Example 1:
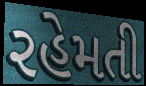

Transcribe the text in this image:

રહેમતી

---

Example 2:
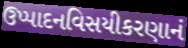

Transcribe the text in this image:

ઉપ્પાદનવિસયીકરણાનં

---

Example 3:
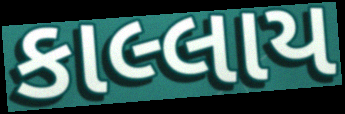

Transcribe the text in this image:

કાલ્લાય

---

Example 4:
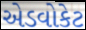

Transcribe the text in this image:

એડવોકેટ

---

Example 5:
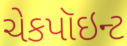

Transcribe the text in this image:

ચેકપૉઇન્ટ